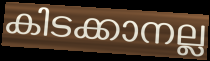
കിടക്കാനല്ല